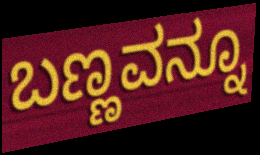
ಬಣ್ಣವನ್ನೂ